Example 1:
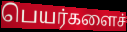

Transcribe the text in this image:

பெயர்களைச்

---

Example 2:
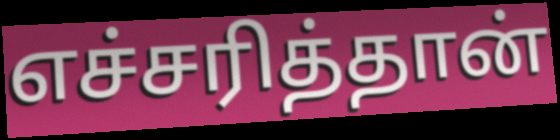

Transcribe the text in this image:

எச்சரித்தான்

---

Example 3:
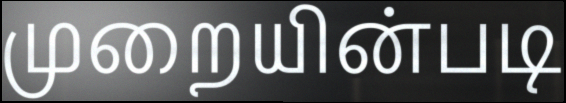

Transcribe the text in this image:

முறையின்படி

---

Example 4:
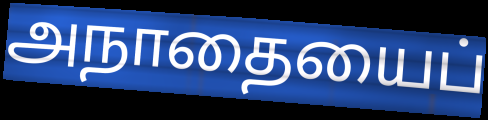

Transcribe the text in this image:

அநாதையைப்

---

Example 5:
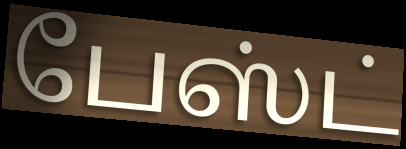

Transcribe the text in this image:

பேஸ்ட்